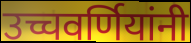
उच्चवर्णियांनी